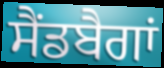
ਸੈਂਡਬੈਗਾਂ